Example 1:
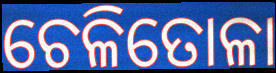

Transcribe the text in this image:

ଚେଳିତୋଳା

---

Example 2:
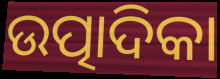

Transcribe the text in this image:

ଉତ୍ପାଦିକା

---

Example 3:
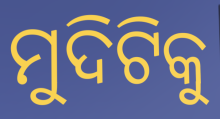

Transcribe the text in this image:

ମୁଦିଟିକୁ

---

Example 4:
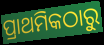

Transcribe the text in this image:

ପ୍ରାଥମିକଠାରୁ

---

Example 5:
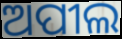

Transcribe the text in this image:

ଅପୀଲ